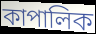
কাপালিক